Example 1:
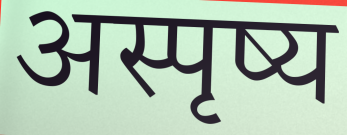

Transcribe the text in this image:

अस्पृष्य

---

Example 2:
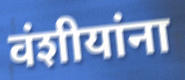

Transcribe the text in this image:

वंशीयांना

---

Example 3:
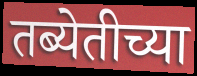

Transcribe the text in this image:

तब्येतीच्या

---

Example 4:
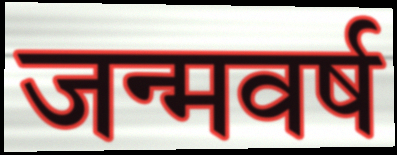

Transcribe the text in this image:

जन्मवर्ष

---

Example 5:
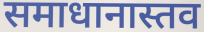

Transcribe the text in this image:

समाधानास्तव